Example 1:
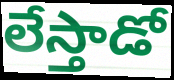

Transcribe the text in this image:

లేస్తాడో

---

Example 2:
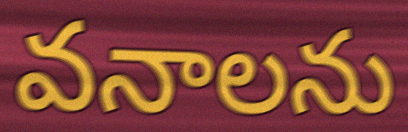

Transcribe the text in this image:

వనాలను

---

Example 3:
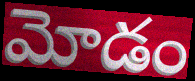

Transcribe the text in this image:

మోడం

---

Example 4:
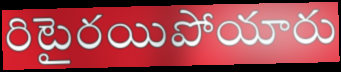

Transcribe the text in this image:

రిటైరయిపోయారు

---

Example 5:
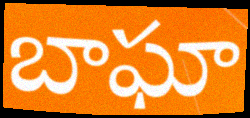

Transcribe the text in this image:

బాఘా